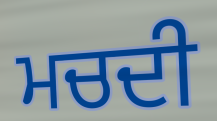
ਮਚਦੀ